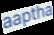
aaptha